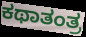
ಕಥಾತಂತ್ರ